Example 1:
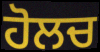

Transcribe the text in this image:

ਹੋਲਚ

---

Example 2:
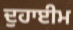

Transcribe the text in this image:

ਦੁਹਾਈਮ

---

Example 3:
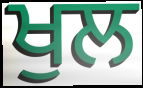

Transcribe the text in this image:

ਖੁਲ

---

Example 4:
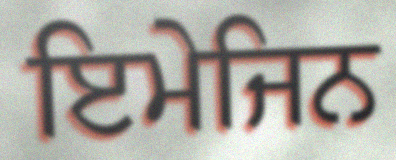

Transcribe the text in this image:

ਇਮੇਜਿਨ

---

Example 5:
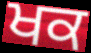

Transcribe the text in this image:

ਖਕ